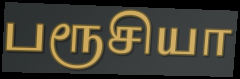
பரூசியா